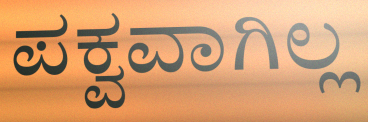
ಪಕ್ವವಾಗಿಲ್ಲ